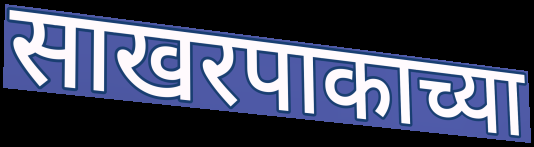
साखरपाकाच्या